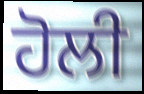
ਹੋਲੀ